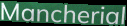
Mancherial